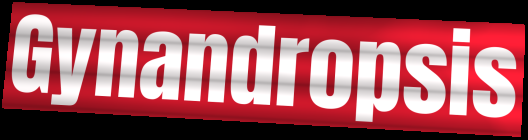
Gynandropsis